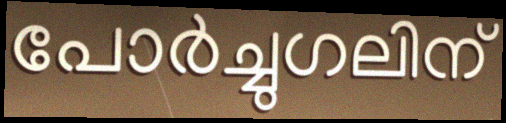
പോർച്ചുഗലിന്